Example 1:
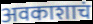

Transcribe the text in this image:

अवकाशाचं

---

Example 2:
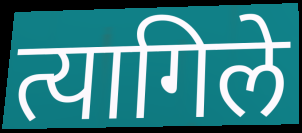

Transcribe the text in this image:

त्यागिले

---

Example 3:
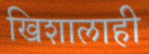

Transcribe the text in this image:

खिशालाही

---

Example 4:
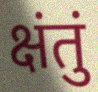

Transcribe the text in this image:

क्षंतुं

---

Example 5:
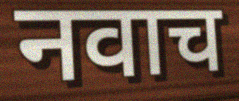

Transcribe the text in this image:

नवाच